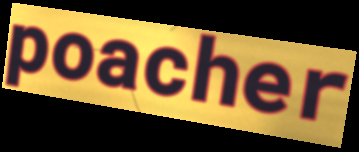
poacher